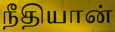
நீதியான்